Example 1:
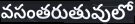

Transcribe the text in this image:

వసంతరుతువులో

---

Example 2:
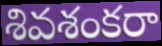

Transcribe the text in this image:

శివశంకరా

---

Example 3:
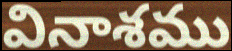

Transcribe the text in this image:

వినాశము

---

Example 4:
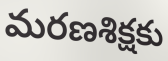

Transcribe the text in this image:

మరణశిక్షకు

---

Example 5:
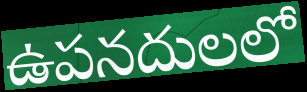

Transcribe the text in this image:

ఉపనదులలో